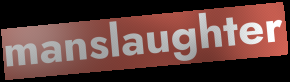
manslaughter